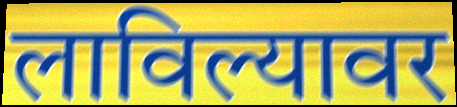
लाविल्यावर